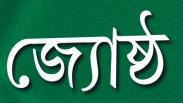
জ্যোষ্ঠ